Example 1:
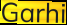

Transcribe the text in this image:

Garhi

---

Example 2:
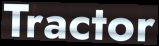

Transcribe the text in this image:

Tractor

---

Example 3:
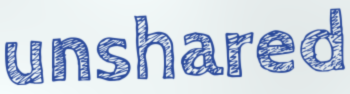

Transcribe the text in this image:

unshared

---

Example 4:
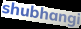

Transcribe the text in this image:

shubhangi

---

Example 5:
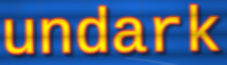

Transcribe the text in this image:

undark